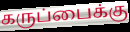
கருப்பைக்கு